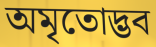
অমৃতোদ্ভব